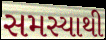
સમસ્યાથી